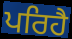
ਪਰਿਹੈ